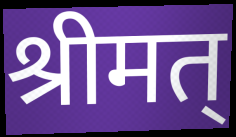
श्रीमत्